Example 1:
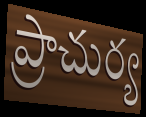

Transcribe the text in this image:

ప్రాచుర్య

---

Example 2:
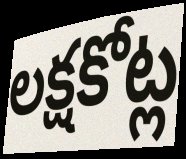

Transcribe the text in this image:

లక్షకోట్ల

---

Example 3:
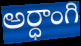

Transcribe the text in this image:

అర్ధాంగి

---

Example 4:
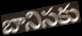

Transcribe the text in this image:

బానిసకు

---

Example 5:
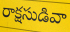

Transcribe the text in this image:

రాక్షసుడివా